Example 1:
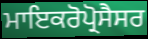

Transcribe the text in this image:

ਮਾਇਕਰੋਪ੍ਰੋਸੈਸਰ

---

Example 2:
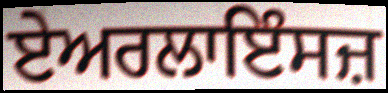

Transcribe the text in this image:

ਏਅਰਲਾਇੰਸਜ਼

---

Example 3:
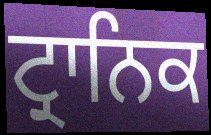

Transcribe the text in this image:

ਟ੍ਰਾਨਿਕ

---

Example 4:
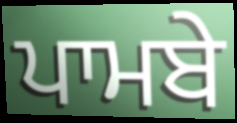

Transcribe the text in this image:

ਪਾਮਬੇ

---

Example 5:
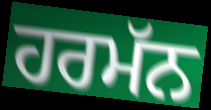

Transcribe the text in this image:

ਹਰਮੱਨ